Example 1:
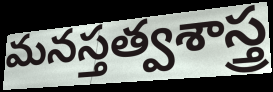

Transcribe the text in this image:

మనస్తత్వశాస్త్ర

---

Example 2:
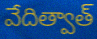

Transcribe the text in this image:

వేదిత్వాత్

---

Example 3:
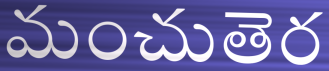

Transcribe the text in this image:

మంచుతెర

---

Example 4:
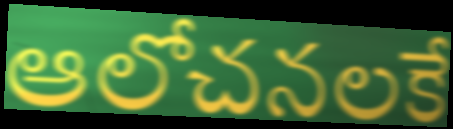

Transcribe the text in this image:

ఆలోచనలకే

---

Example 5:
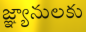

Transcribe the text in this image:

జ్ఞ్యానులకు